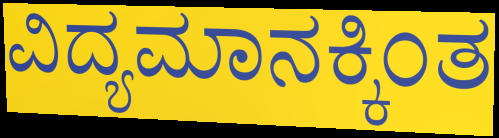
ವಿದ್ಯಮಾನಕ್ಕಿಂತ